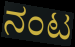
ನಂಟ